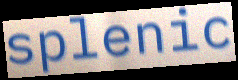
splenic